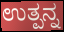
ಉತ್ಪನ್ನ